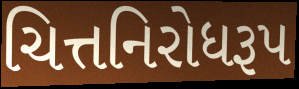
ચિત્તનિરોધરૂપ